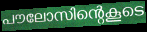
പൗലോസിന്റെകൂടെ